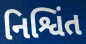
નિશ્વિંત